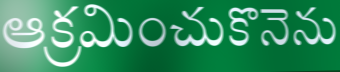
ఆక్రమించుకొనెను